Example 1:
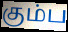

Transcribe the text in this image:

கும்ப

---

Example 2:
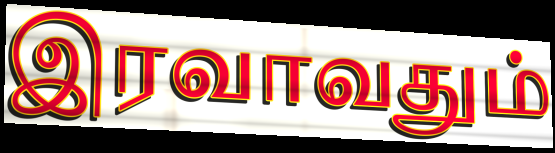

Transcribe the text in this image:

இரவாவதும்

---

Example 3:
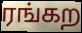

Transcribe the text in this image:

ரங்கற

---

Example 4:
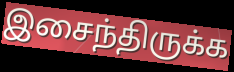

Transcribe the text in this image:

இசைந்திருக்க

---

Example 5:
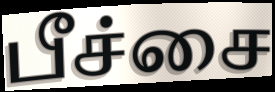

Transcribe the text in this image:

பீச்சை